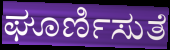
ಘೂರ್ಣಿಸುತೆ